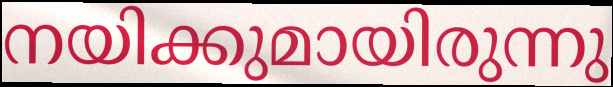
നയിക്കുമായിരുന്നു